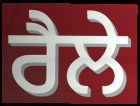
ਰੈਲੇ